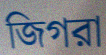
জিগরা